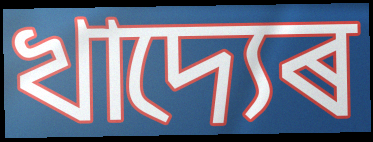
খাদ্যেৰ